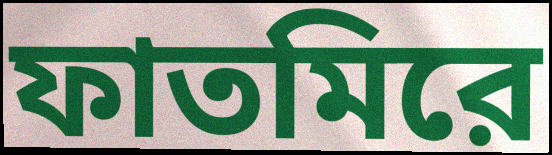
ফাতমিরে